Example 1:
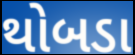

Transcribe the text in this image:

થોબડા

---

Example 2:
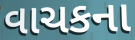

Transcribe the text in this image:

વાચકના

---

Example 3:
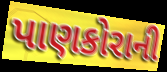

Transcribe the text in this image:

પાણકોરાની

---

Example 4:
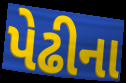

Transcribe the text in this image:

પેઢીના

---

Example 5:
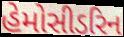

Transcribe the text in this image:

હેમોસીડરિન